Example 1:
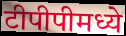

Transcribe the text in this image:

टीपीपीमध्ये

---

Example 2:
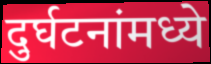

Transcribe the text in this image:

दुर्घटनांमध्ये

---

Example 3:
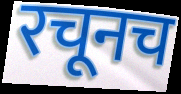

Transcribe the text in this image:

रचूनच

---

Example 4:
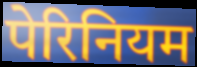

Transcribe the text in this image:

पेरिनियम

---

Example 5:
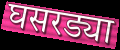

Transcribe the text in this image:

घसरड्या